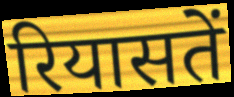
रियासतें